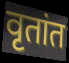
वृतांत